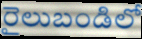
రైలుబండిలో